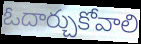
ఓదార్చుకోవాలి